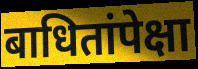
बाधितांपेक्षा